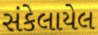
સંકેલાયેલ